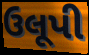
ઉલૂપી